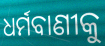
ଧର୍ମବାଣୀକୁ